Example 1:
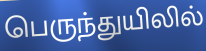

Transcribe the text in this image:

பெருந்துயிலில்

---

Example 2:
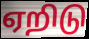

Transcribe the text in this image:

ஏறிடு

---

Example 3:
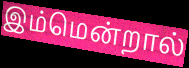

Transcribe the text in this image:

இம்மென்றால்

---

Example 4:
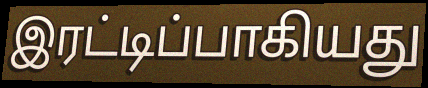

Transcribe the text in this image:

இரட்டிப்பாகியது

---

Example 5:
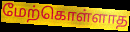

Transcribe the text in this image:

மேற்கொள்ளாத